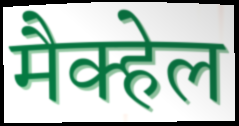
मैक्हेल